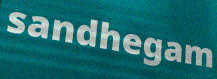
sandhegam